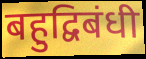
बहुद्विबंधी